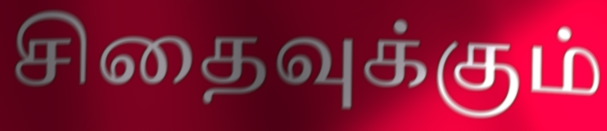
சிதைவுக்கும்